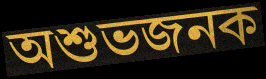
অশুভজনক